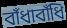
বাঁধাবাঁধি